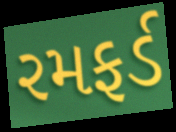
રમફર્ડ